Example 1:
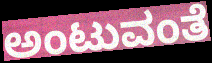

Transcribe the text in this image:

ಅಂಟುವಂತೆ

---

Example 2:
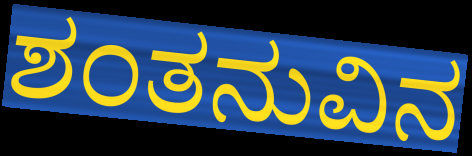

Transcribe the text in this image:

ಶಂತನುವಿನ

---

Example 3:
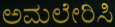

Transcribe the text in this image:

ಅಮಲೇರಿಸಿ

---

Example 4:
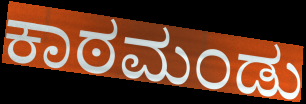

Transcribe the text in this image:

ಕಾಠಮಂಡು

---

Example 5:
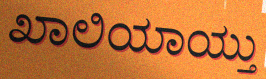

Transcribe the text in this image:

ಖಾಲಿಯಾಯ್ತು